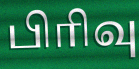
பிரிவு